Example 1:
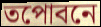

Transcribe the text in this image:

তপোবনে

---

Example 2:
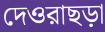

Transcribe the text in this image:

দেওরাছড়া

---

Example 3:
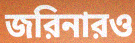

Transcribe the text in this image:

জরিনারও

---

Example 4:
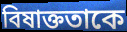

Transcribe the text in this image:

বিষাক্ততাকে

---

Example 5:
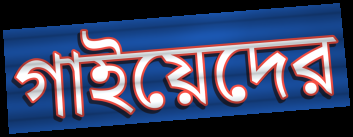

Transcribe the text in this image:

গাইয়েদের